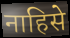
नाहिसे